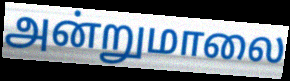
அன்றுமாலை